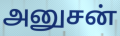
அனுசன்